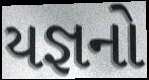
યજ્ઞનો